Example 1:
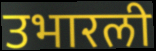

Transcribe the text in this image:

उभारली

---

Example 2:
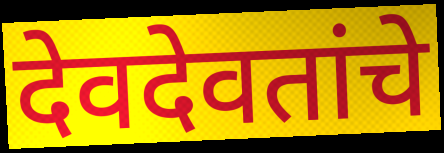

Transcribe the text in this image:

देवदेवतांचे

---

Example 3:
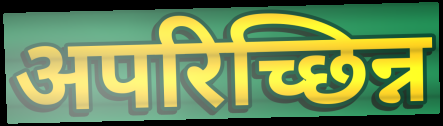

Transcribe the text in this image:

अपरिच्छिन्न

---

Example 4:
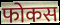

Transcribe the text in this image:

फोकस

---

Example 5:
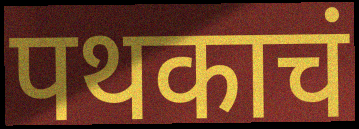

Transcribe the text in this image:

पथकाचं